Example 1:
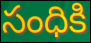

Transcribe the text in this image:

సంధికి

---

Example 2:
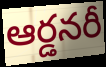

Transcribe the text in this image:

ఆర్డనరీ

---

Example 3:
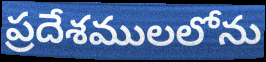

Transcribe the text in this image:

ప్రదేశములలోను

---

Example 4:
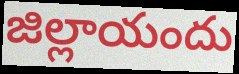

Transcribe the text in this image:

జిల్లాయందు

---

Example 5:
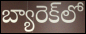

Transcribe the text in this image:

బ్యారెక్‌లో